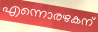
എന്നൊരഴകന്